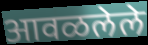
आवळलेले